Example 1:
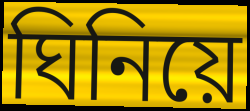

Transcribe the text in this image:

ঘিনিয়ে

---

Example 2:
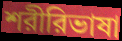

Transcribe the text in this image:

শরীরিভাষা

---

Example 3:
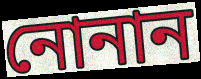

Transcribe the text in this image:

নোনান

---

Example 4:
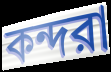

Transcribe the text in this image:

কন্দরা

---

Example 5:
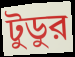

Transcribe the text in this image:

টুডুর